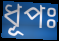
ধূপঃ